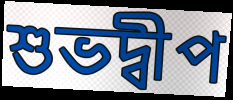
শুভদ্বীপ